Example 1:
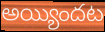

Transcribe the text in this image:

అయ్యిందట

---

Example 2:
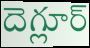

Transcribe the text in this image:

దెగ్లూర్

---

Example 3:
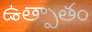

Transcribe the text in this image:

ఉత్పాతం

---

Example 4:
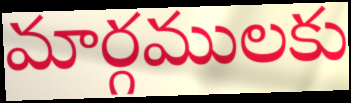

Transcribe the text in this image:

మార్గములకు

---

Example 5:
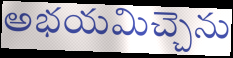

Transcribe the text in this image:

అభయమిచ్చెను